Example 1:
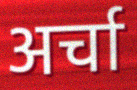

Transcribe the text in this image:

अर्चा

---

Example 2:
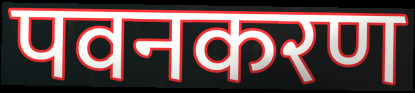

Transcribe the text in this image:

पवनकरण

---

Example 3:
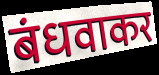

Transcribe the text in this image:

बंधवाकर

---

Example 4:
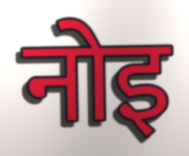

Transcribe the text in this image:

नोइ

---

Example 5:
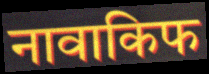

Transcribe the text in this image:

नावाकिफ